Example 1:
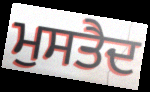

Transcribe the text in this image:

ਮੁਸਤੈਦ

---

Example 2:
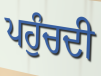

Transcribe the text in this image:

ਪਹੁੰਚਦੀ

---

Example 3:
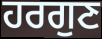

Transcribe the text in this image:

ਹਰਗੁਣ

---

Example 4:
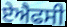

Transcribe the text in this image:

ਏਐਫਸੀ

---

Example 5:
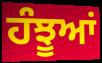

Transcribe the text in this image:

ਹੰਝੂਆਂ